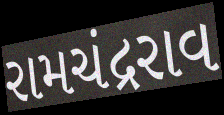
રામચંદ્રરાવ